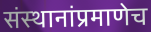
संस्थानांप्रमाणेच